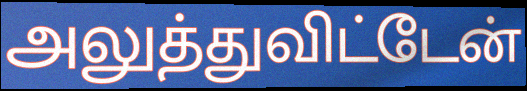
அலுத்துவிட்டேன்